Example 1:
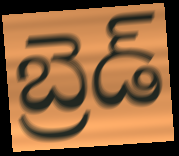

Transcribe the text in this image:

బ్రెడ్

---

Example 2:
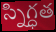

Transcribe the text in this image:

స్నిగ్ధత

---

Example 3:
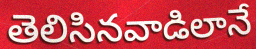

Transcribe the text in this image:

తెలిసినవాడిలానే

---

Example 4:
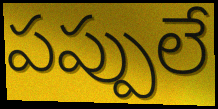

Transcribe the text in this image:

పప్పులే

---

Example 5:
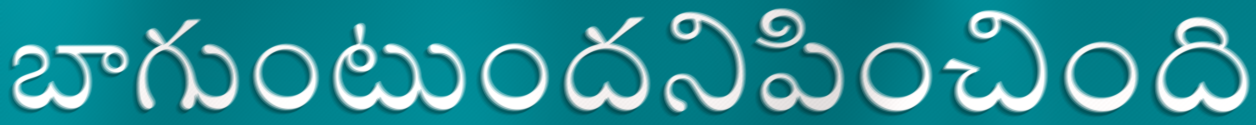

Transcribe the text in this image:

బాగుంటుందనిపించింది